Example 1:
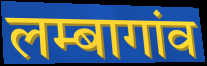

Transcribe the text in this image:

लम्बागांव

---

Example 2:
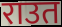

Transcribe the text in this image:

राउत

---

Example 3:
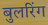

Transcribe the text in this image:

बुलरिंग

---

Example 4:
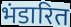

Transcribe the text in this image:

भंडारित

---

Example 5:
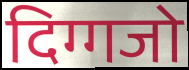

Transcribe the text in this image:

दिग्गजो